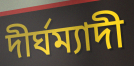
দীৰ্ঘম্যাদী